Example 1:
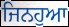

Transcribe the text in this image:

ਜਿਨਹੁਆ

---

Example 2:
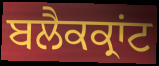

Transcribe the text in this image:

ਬਲੈਕਕ੍ਰਾਂਟ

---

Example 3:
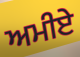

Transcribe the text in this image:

ਅਮੀਏ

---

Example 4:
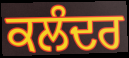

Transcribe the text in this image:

ਕਲੰਦਰ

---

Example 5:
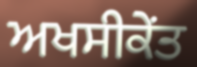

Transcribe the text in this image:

ਅਖਸੀਕੇਂਤ